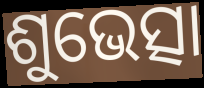
ଶୁଭେତ୍ସା